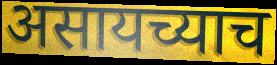
असायच्याच